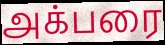
அக்பரை